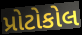
પ્રોટોકોલ